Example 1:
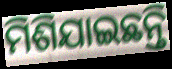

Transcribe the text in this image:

ମିଶିଯାଇଛନ୍ତି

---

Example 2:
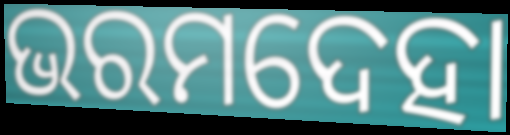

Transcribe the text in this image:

ଭରମଦେହା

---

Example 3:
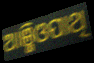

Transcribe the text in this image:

ଆଞ୍ଜିଓପାଥି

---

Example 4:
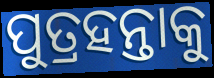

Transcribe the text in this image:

ପୁତ୍ରହନ୍ତାକୁ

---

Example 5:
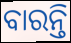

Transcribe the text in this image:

ବାରନ୍ତି